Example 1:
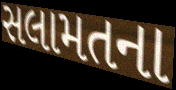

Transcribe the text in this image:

સલામતના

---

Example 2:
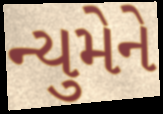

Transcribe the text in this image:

ન્યુમેને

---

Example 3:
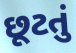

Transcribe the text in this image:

છૂટતું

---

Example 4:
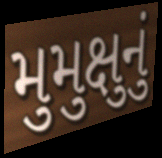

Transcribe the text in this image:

મુમુક્ષુનું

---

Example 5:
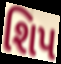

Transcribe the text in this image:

શિપ